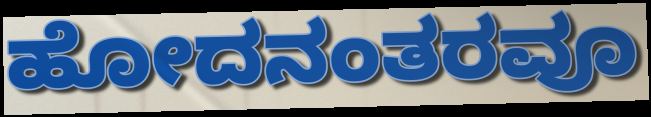
ಹೋದನಂತರವೂ